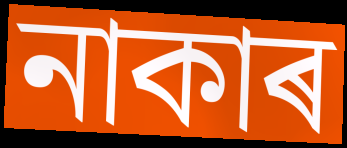
নাকাৰ